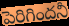
పెరిగిందనీ